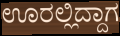
ಊರಲ್ಲಿದ್ದಾಗ